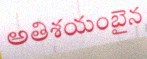
అతిశయంబైన